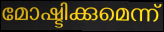
മോഷ്ടിക്കുമെന്ന്